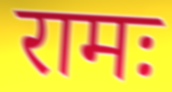
रामः